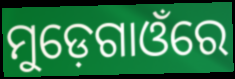
ମୁଡ଼େଗାଓଁରେ